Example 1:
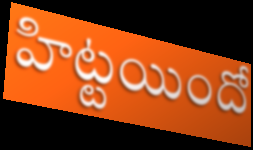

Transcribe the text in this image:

హిట్టయిందో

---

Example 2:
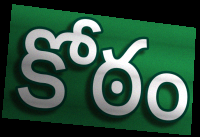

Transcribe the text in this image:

కోఠం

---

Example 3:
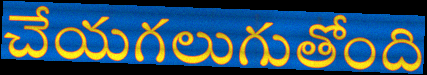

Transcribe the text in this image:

చేయగలుగుతోంది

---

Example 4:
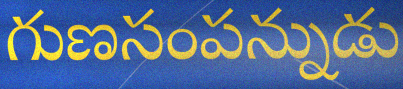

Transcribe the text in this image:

గుణసంపన్నుడు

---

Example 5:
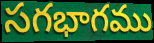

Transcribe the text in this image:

సగభాగము